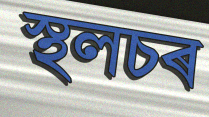
স্থলচৰ